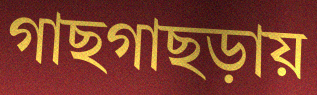
গাছগাছড়ায়